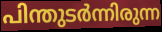
പിന്തുടർന്നിരുന്ന